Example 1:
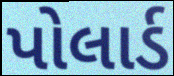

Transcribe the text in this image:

પોલાર્ડ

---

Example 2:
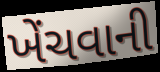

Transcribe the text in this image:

ખેંચવાની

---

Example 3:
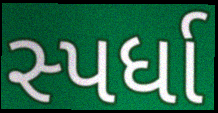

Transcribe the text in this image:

સ્પર્ધા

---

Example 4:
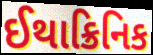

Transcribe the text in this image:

ઈથાક્રિનિક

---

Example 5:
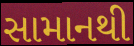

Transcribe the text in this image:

સામાનથી